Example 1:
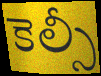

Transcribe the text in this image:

కెల్సీ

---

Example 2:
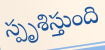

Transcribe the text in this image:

స్పృశిస్తుంది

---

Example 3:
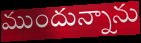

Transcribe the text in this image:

ముందున్నాను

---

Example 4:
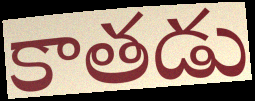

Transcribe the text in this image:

కాతడు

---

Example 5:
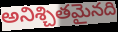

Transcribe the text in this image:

అనిశ్చితమైనది